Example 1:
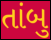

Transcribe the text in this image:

તાંબુ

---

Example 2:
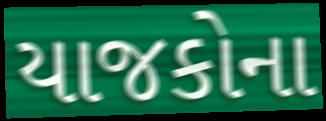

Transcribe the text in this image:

યાજકોના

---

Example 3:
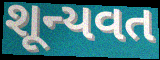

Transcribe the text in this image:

શૂન્યવત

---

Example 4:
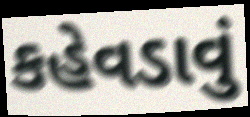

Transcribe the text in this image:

કહેવડાવું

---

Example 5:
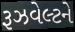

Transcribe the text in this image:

રૂઝવેલ્ટને